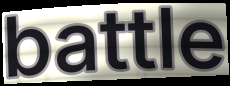
battle